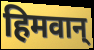
हिमवान्